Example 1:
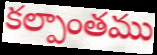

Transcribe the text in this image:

కల్పాంతము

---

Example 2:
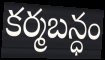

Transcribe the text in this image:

కర్మబన్ధం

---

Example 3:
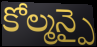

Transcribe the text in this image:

కోల్మన్పై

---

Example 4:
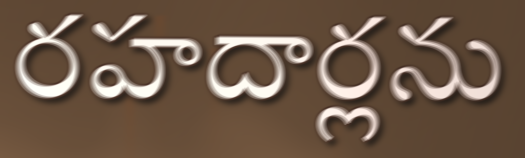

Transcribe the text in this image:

రహదార్లను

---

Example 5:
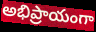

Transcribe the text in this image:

అభిప్రాయంగా